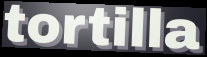
tortilla